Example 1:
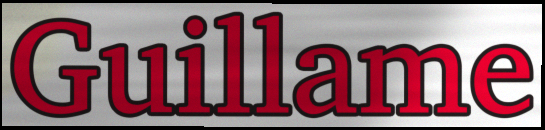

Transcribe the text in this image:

Guillame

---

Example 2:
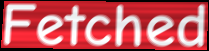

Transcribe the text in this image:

Fetched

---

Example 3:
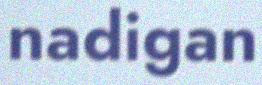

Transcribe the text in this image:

nadigan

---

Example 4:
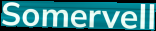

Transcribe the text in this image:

Somervell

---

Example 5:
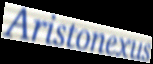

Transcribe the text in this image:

Aristonexus